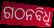
ଗଠନବିଧି